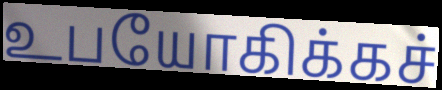
உபயோகிக்கச்